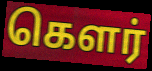
கௌர்